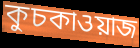
কুচকাওয়াজ